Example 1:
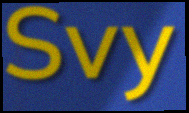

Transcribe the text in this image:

Svy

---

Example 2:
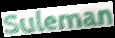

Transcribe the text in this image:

Suleman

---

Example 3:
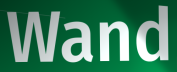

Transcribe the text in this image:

Wand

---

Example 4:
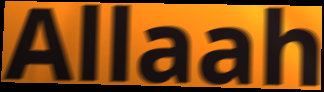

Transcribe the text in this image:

Allaah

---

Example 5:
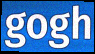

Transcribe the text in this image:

gogh